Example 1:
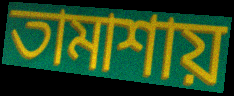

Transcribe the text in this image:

তামাশায়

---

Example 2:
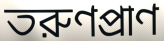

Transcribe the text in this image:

তরুণপ্রাণ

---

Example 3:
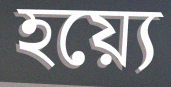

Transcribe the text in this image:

হয়্যে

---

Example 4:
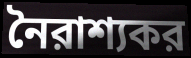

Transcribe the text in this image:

নৈরাশ্যকর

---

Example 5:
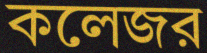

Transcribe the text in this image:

কলেজর